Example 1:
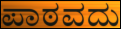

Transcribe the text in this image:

ಪಾಠವದು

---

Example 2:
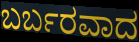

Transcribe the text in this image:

ಬರ್ಬರವಾದ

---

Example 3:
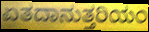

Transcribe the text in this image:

ಏತದಾನುತ್ತರಿಯಂ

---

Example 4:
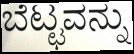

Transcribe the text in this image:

ಬೆಟ್ಟವನ್ನು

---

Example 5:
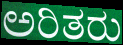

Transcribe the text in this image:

ಅರಿತರು